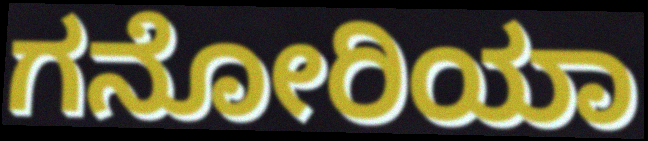
ಗನೋರಿಯಾ